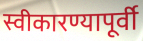
स्वीकारण्यापूर्वी